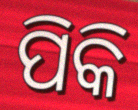
ପିକି